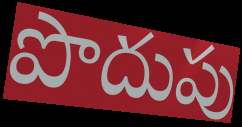
పొదుపు